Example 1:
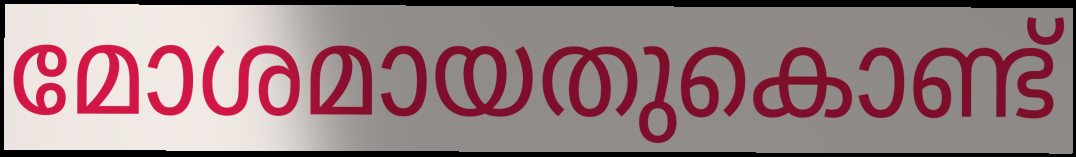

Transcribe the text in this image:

മോശമായതുകൊണ്ട്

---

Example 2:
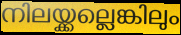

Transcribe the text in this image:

നിലയ്ക്കല്ലെങ്കിലും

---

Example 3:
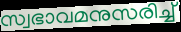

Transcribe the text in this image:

സ്വഭാവമനുസരിച്ച്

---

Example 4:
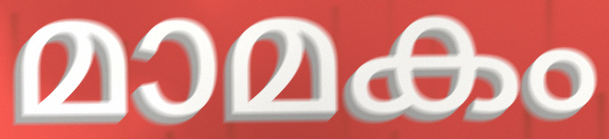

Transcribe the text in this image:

മാമകം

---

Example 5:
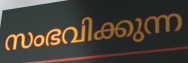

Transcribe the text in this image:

സംഭവിക്കുന്ന